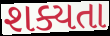
શક્યતા